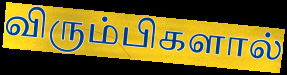
விரும்பிகளால்